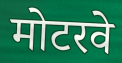
मोटरवे